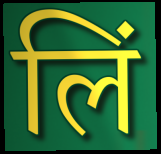
लिं